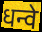
धन्वे